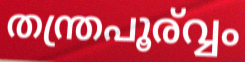
തന്ത്രപൂര്വ്വം